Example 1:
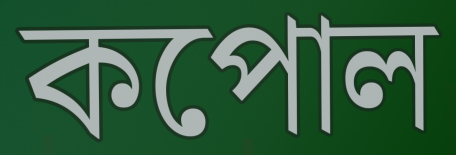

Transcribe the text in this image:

কপোল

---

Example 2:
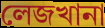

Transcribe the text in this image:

লেজখানা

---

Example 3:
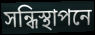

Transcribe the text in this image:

সন্ধিস্থাপনে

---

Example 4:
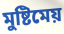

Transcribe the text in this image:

মুষ্টিমেয়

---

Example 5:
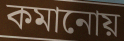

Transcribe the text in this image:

কমানোয়